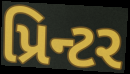
પ્રિન્ટર